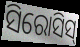
ସିରୋସିସ୍